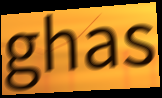
ghas